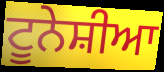
ਟੂਨੇਸ਼ੀਆ